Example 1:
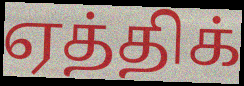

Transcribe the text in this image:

ஏத்திக்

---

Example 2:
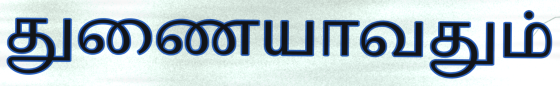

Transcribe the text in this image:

துணையாவதும்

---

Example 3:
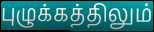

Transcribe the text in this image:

புழுக்கத்திலும்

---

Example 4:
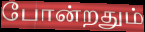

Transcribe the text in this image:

போன்றதும்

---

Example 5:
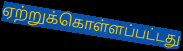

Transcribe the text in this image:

ஏற்றுக்கொள்ளப்பட்டது